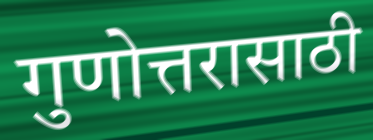
गुणोत्तरासाठी